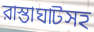
রাস্তাঘাটসহ